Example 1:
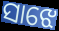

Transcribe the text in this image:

ସାଝେ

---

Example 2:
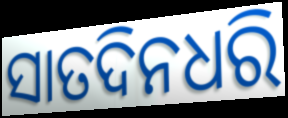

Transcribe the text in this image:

ସାତଦିନଧରି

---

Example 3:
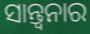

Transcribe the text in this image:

ସାନ୍ତ୍ୱନାର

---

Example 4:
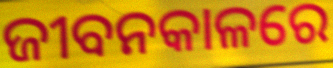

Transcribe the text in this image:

ଜୀବନକାଳରେ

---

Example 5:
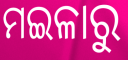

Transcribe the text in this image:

ମଇଳାରୁ